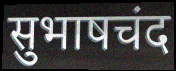
सुभाषचंद